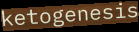
ketogenesis